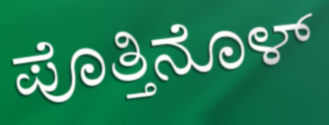
ಪೊತ್ತಿನೊಳ್